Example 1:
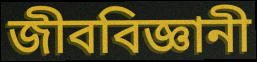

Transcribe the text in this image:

জীববিজ্ঞানী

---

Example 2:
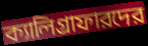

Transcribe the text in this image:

ক্যালিগ্রাফারদের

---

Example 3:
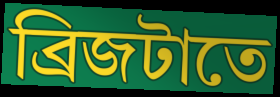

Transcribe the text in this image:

ব্রিজটাতে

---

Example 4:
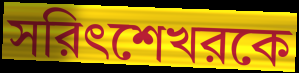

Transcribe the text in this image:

সরিৎশেখরকে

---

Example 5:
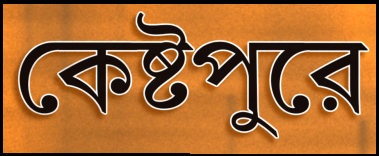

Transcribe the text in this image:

কেষ্টপুরে